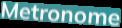
Metronome